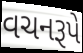
વચનરૂપે